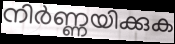
നിർണ്ണയിക്കുക